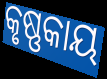
କୃଷ୍ଣକାୟ